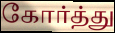
கோர்த்து